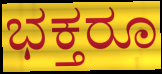
ಭಕ್ತರೂ